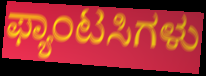
ಫ್ಯಾಂಟಸಿಗಳು